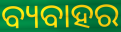
ବ୍ୟବାହର